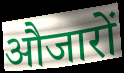
औजारों